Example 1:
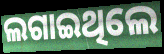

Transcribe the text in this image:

ଲଗାଇଥିଲେ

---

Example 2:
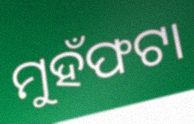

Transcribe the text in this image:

ମୁହଁଫଟା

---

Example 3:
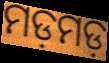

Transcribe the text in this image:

ମଡ଼ମଡ଼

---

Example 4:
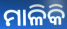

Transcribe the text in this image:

ମାଳିକି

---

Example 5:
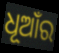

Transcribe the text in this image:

ଧୂଆଁର